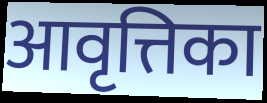
आवृत्तिका